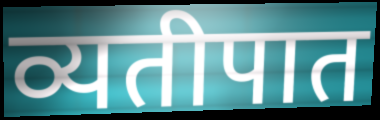
व्यतीपात